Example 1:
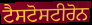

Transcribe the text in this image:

ਟੈਸਟੋਸਟੀਰੋਨ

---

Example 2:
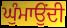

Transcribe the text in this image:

ਘੁੰਮਾਉਂਦੀ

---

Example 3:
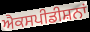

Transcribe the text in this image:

ਐਕਸਪੀਡੀਸ਼ਨਾਂ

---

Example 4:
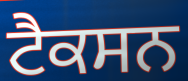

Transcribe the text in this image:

ਟੈਕਸਨ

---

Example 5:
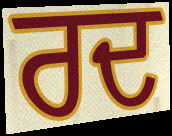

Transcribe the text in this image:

ਰਦ